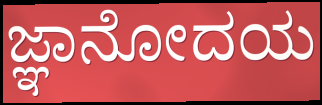
ಜ್ಞಾನೋದಯ